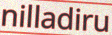
nilladiru